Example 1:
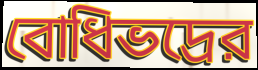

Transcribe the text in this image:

বোধিভদ্রের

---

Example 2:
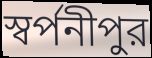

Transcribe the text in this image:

স্বর্পনীপুর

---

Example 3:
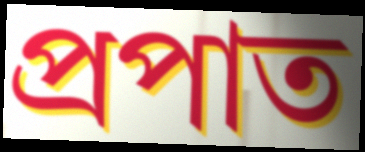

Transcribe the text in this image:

প্রপাত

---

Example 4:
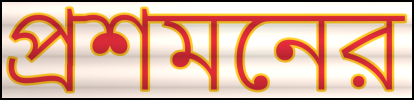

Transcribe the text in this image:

প্রশমনের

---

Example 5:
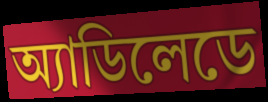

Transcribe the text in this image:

অ্যাডিলেডে